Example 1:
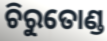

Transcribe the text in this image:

ଚିରୁତୋଣ୍ଡ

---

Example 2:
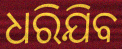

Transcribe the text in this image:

ଧରିଯିବ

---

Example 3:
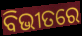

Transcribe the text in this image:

ବିଭୀତରେ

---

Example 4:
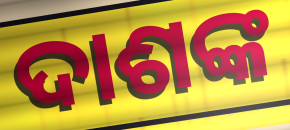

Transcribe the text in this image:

ଦାଶଙ୍କ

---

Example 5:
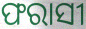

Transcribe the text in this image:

ଫରାସୀ